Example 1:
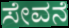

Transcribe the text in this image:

ಸೇವನೆ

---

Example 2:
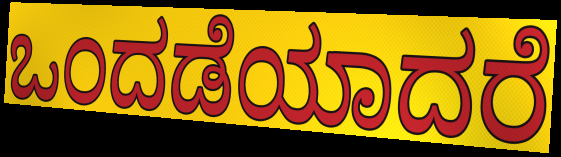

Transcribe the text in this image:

ಒಂದಡೆಯಾದರೆ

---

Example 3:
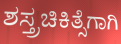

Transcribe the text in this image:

ಶಸ್ತ್ರಚಿಕಿತ್ಸೆಗಾಗಿ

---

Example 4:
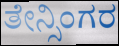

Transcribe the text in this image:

ತೇನ್ಸಿಂಗರ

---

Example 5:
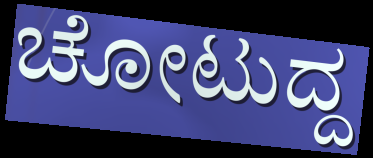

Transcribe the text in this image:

ಚೋಟುದ್ದ